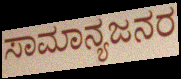
ಸಾಮಾನ್ಯಜನರ